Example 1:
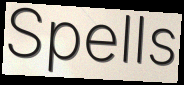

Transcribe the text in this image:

Spells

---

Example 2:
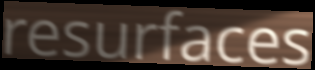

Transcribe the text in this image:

resurfaces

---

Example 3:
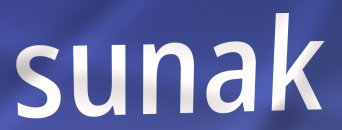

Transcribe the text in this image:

sunak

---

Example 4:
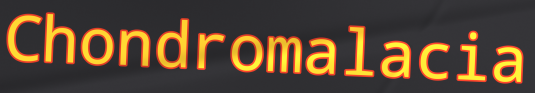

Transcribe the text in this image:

Chondromalacia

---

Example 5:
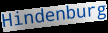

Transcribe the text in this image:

Hindenburg